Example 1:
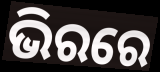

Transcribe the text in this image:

ଭିରରେ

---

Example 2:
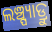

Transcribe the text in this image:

ଲଞ୍ଚ୍ପ୍ୟାଡ୍ରୁ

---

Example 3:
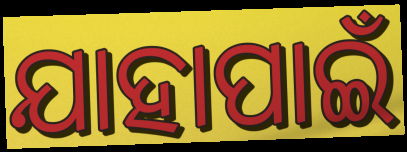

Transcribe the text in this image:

ଯାହାପାଇଁ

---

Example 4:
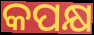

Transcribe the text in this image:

କପକ୍ଷ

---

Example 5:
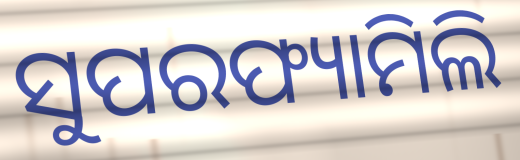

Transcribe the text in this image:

ସୁପରଫ୍ୟାମିଲି